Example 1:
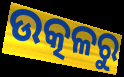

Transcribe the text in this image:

ଉତ୍କଳରୁ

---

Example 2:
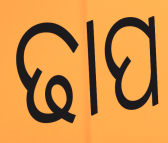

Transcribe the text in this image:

ଢାପ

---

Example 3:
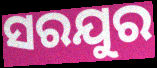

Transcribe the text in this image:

ସରଯୁର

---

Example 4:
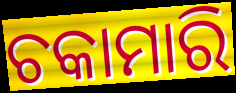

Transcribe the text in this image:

ଚକାମାରି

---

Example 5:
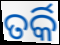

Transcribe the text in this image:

ତର୍କି